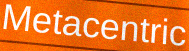
Metacentric